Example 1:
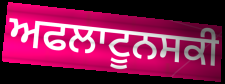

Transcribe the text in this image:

ਅਫਲਾਟੂਨਸਕੀ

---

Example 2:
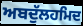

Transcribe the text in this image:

ਅਬਦੁੱਲਹਮਿਦ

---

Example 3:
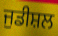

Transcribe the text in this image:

ਜੁਡੀਸ਼ਲ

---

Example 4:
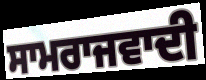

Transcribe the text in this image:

ਸਾਮਰਾਜਵਾਦੀ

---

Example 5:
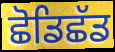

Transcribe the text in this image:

ਛੋਡਿਛੱਡ